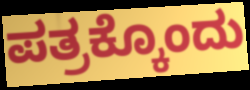
ಪತ್ರಕ್ಕೊಂದು